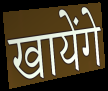
खायेंगे